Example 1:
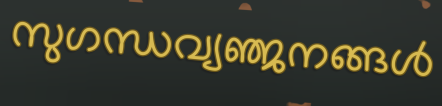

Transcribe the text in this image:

സുഗന്ധവ്യഞ്ജനങ്ങൾ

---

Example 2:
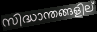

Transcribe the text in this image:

സിദ്ധാന്തങ്ങളില്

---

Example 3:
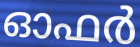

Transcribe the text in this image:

ഓഫർ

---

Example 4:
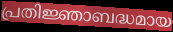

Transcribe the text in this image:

പ്രതിജ്ഞാബദ്ധമായ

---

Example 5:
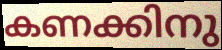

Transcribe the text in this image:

കണക്കിനു